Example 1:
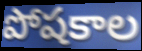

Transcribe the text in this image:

పోషకాల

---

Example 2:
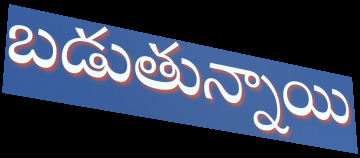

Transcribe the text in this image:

బడుతున్నాయి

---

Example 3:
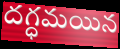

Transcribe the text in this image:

దగ్ధమయిన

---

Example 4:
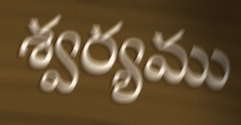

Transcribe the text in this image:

శ్వర్యము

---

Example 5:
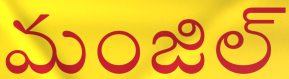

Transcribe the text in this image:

మంజిల్